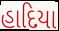
હાદિયા